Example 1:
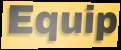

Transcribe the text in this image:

Equip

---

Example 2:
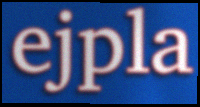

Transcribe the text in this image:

ejpla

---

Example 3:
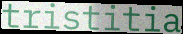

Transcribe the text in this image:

tristitia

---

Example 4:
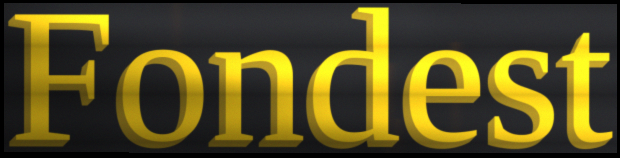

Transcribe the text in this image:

Fondest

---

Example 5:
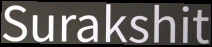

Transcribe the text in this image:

Surakshit